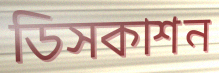
ডিসকাশন